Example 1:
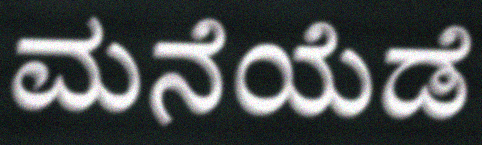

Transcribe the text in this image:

ಮನೆಯೆಡೆ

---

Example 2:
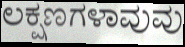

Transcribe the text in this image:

ಲಕ್ಷಣಗಳಾವುವು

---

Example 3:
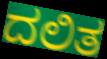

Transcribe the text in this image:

ದಲಿತ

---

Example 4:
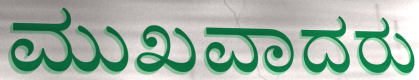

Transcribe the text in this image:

ಮುಖವಾದರು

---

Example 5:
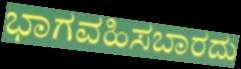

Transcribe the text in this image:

ಭಾಗವಹಿಸಬಾರದು